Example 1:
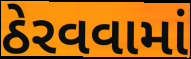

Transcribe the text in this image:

ઠેરવવામાં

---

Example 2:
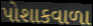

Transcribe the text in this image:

પોશાકવાળા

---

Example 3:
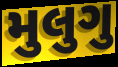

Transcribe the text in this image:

મુલુગુ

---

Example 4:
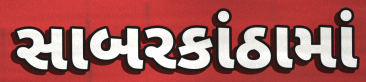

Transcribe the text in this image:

સાબરકાંઠામાં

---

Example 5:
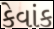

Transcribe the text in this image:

કેવાંક